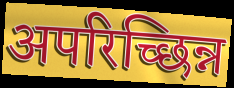
अपरिच्छिन्न